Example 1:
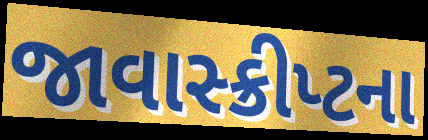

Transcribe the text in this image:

જાવાસ્ક્રીપ્ટના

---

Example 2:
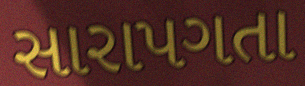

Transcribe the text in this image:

સારાપગતા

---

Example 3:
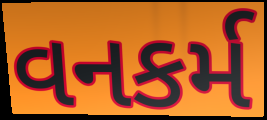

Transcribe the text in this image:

વનકર્મ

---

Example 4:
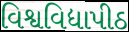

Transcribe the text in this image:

વિશ્વવિદ્યાપીઠ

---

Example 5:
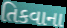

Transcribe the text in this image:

તિકવાના